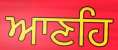
ਆਣਹਿ